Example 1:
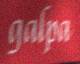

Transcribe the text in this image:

galpa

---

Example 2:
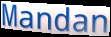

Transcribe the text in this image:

Mandan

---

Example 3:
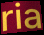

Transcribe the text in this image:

ria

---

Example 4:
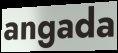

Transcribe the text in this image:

angada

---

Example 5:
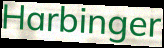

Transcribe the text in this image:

Harbinger